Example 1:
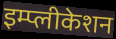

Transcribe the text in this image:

इम्प्लीकेशन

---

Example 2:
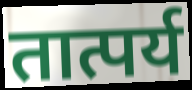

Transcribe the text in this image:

तात्पर्य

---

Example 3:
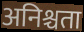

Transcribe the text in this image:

अनिश्चता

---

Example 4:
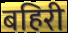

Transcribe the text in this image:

बहिरी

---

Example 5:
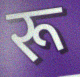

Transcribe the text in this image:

रू